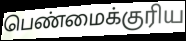
பெண்மைக்குரிய